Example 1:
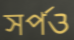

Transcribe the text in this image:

সর্পও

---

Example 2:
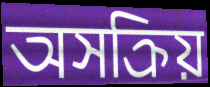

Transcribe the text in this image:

অসক্রিয়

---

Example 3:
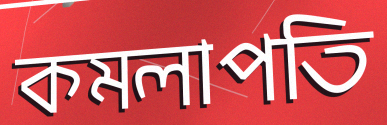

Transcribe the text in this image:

কমলাপতি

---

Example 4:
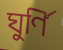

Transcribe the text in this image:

ঘুর্ণি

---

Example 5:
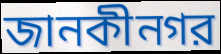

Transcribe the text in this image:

জানকীনগর